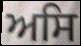
ਅਸਿ